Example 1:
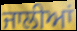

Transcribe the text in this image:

ਜਾਲੀਆਂ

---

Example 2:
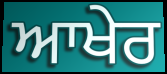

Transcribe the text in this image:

ਆਖੇਰ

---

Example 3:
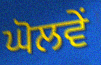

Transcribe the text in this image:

ਘੋਲਵੇਂ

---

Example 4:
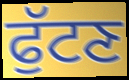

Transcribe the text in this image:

ਫੁੱਟਣ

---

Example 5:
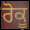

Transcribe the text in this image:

ਰੋਕੂ